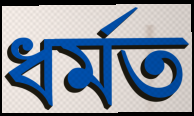
ধৰ্মত